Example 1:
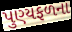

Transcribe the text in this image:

પુણ્યફળના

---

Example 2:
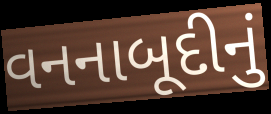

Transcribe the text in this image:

વનનાબૂદીનું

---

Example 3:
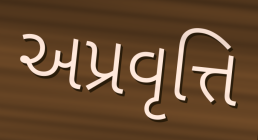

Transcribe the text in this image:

અપ્રવૃત્તિ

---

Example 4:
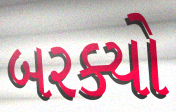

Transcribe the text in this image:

બરક્યો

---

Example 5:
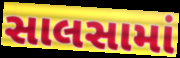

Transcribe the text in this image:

સાલસામાં